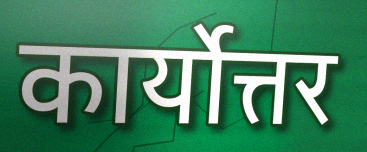
कार्योत्तर